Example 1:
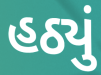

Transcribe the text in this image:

હઠ્યું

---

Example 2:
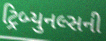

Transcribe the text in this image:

ટ્રિબ્યુનલ્સની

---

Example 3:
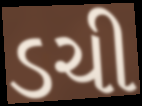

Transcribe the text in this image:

ડચી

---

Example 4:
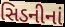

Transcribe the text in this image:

સિડનીનાં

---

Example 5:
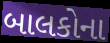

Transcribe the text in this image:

બાલકોના